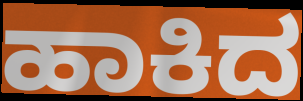
ಹಾಕಿದ